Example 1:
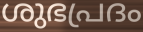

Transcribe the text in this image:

ശുഭപ്രദം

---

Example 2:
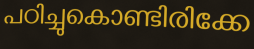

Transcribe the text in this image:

പഠിച്ചുകൊണ്ടിരിക്കേ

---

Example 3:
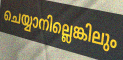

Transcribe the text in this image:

ചെയ്യാനില്ലെങ്കിലും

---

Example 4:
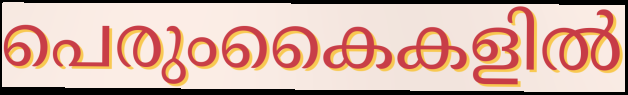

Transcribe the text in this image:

പെരുംകൈകളിൽ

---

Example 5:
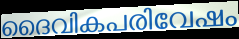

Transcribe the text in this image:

ദൈവികപരിവേഷം